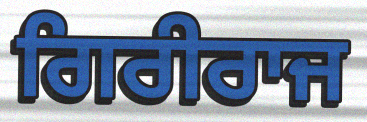
ਗਿਰੀਰਾਜ